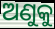
ଅଣୁକୁ